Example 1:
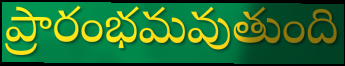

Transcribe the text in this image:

ప్రారంభమవుతుంది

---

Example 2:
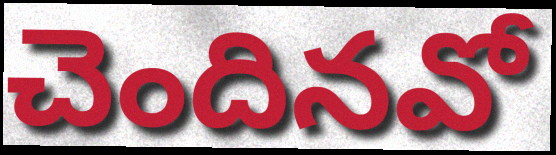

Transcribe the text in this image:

చెందినవో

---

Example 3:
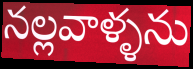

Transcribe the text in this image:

నల్లవాళ్ళను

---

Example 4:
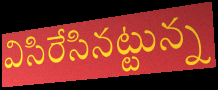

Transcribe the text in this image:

విసిరేసినట్టున్న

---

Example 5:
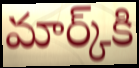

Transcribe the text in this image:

మార్క్‌కి